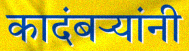
कादंबऱ्यांनी